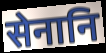
सेनानि